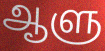
ஆளு